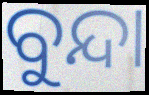
ବୁନ୍ଦା